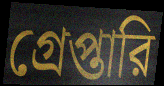
গ্রেপ্তারি